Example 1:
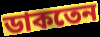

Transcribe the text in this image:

ডাকতেন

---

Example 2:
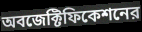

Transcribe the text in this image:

অবজেক্টিফিকেশনের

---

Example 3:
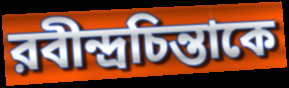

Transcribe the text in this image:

রবীন্দ্রচিন্তাকে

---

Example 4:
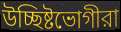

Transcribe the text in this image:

উচ্ছিষ্টভোগীরা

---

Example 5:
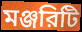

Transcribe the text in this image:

মঞ্জরিটি